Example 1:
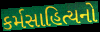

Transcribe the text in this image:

કર્મસાહિત્યનો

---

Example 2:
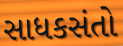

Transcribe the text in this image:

સાધકસંતો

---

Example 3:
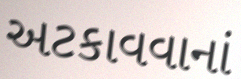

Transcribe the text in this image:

અટકાવવાનાં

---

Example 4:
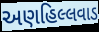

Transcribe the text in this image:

અણહિલ્લવાડ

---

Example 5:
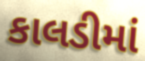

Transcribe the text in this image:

કાલડીમાં